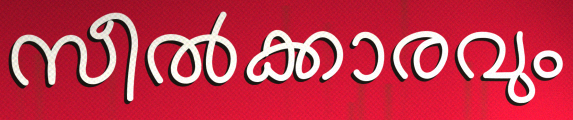
സീൽക്കാരവും